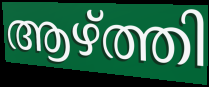
ആഴ്ത്തി